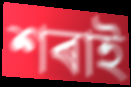
শৰাই